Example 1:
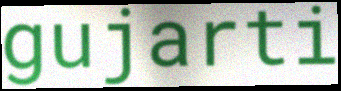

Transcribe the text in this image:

gujarti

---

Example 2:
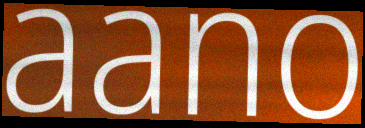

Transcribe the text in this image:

aano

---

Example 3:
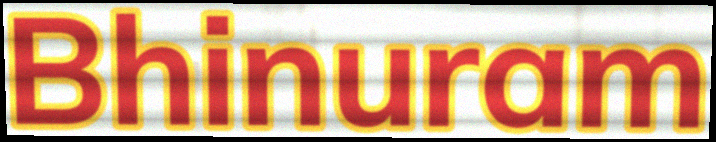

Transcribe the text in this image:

Bhinuram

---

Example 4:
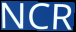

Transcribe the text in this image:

NCR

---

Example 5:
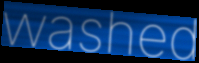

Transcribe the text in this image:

washed